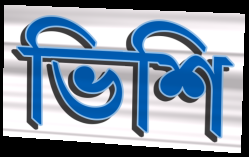
ভিশি